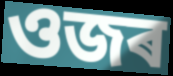
ওজৰ